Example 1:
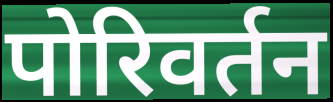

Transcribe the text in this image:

पोरिवर्तन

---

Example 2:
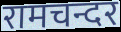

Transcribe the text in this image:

रामचन्दर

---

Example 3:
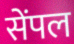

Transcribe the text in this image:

सेंपल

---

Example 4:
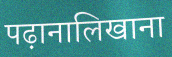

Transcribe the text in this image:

पढ़ानालिखाना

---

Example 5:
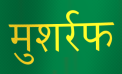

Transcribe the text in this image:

मुशर्रफ